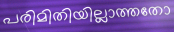
പരിമിതിയില്ലാത്തതോ